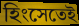
হিংসেতেই